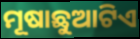
ମୂଷାଛୁଆଟିଏ